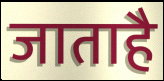
जाताहै